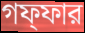
গফ্ফার